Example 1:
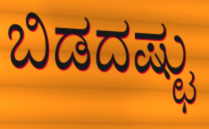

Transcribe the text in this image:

ಬಿಡದಷ್ಟು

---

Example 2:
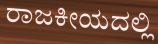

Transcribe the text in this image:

ರಾಜಕೀಯದಲ್ಲಿ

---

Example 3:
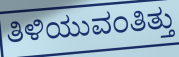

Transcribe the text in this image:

ತಿಳಿಯುವಂತಿತ್ತು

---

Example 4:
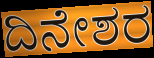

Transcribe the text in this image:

ದಿನೇಶರ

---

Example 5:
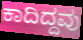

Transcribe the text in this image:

ಕಾದಿದ್ದವು